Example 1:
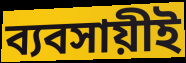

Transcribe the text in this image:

ব্যবসায়ীই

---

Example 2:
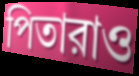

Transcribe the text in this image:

পিতারাও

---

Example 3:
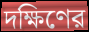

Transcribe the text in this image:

দক্ষিণের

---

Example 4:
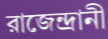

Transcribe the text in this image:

রাজেন্দ্রানী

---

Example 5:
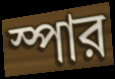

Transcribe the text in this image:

স্পার